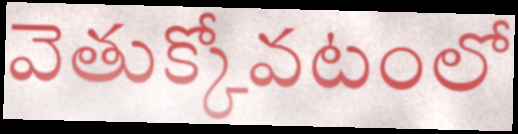
వెతుక్కోవటంలో